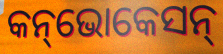
କନ୍‌ଭୋକେସନ୍